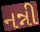
નન્ની